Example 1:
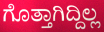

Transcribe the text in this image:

ಗೊತ್ತಾಗಿದ್ದಿಲ್ಲ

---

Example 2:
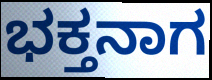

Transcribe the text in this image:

ಭಕ್ತನಾಗ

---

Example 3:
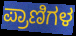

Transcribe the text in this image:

ಪ್ರಾಣಿಗಳ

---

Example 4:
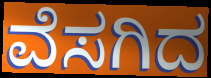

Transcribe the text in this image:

ವೆಸಗಿದ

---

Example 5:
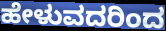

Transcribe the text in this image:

ಹೇಳುವದರಿಂದ